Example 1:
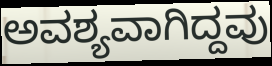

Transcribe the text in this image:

ಅವಶ್ಯವಾಗಿದ್ದವು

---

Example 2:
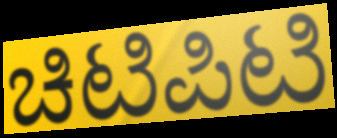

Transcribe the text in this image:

ಚಿಟಿಪಿಟಿ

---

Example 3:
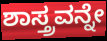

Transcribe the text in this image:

ಶಾಸ್ತ್ರವನ್ನೇ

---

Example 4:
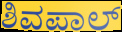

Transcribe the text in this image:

ಶಿವಪಾಲ್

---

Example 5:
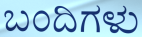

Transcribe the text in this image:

ಬಂದಿಗಳು